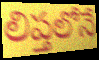
లిప్తలోనే